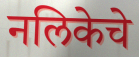
नलिकेचे